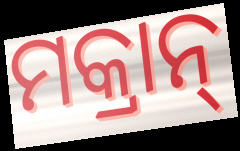
ମକ୍ରାନ୍